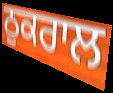
ਠੁਕਰਾਲ